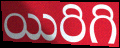
యిరిగి